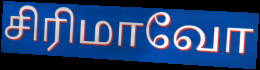
சிரிமாவோ